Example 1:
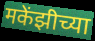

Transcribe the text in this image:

मकेंझीच्या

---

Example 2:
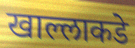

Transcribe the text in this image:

खाल्लाकडे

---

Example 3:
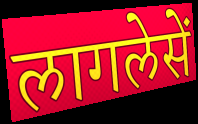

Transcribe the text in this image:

लागलेसें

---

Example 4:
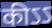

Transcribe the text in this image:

कीऽऽ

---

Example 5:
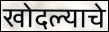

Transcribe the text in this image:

खोदल्याचे